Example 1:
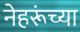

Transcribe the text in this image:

नेहरूंच्या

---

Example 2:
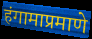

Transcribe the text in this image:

हंगामाप्रमाणे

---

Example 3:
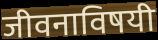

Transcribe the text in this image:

जीवनाविषयी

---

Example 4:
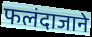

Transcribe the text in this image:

फलंदाजाने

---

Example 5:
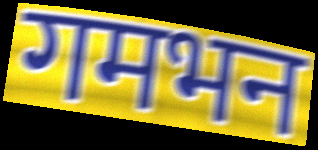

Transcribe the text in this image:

गमभन